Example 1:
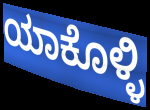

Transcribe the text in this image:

ಯಾಕೊಳ್ಳಿ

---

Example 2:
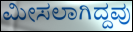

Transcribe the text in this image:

ಮೀಸಲಾಗಿದ್ದವು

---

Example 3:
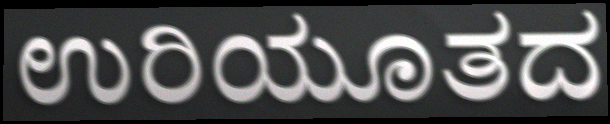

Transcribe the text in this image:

ಉರಿಯೂತದ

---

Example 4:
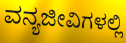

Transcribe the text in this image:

ವನ್ಯಜೀವಿಗಳಲ್ಲಿ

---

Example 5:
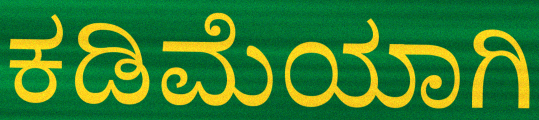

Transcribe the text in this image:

ಕಡಿಮೆಯಾಗಿ